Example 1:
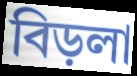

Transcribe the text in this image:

বিড়লা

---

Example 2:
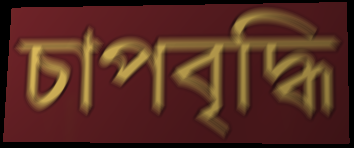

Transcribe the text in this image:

চাপবৃদ্ধি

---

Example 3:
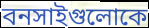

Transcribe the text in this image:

বনসাইগুলোকে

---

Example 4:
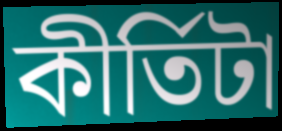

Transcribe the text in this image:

কীর্তিটা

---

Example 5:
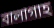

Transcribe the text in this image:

বালাগাহ